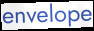
envelope